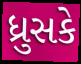
ધ્રુસકે